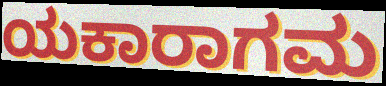
ಯಕಾರಾಗಮ